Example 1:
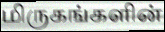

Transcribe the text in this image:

மிருகங்களின்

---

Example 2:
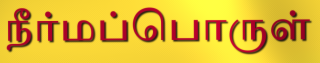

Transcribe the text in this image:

நீர்மப்பொருள்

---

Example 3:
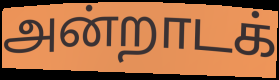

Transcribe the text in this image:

அன்றாடக்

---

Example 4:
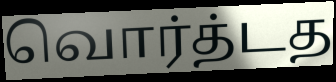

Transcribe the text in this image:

வொர்த்டத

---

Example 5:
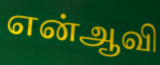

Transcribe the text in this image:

என்ஆவி